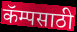
कॅम्पसाठी